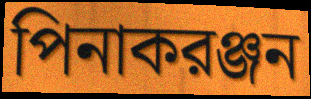
পিনাকরঞ্জন